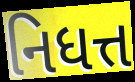
નિધત્ત